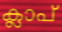
ക്ലാപ്